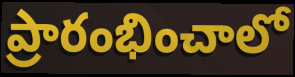
ప్రారంభించాలో